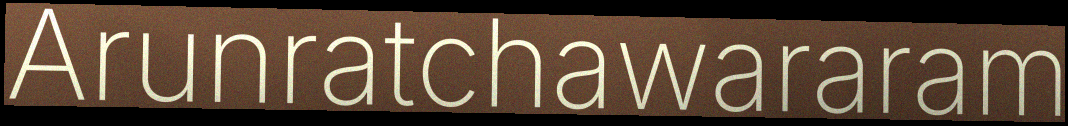
Arunratchawararam